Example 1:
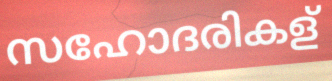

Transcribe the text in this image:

സഹോദരികള്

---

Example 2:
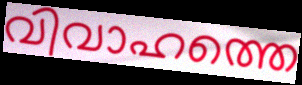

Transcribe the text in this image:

വിവാഹത്തെ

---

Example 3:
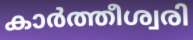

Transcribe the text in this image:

കാർത്തീശ്വരി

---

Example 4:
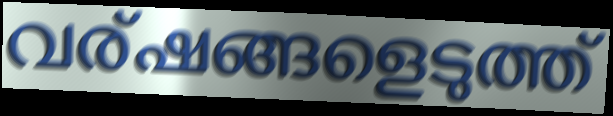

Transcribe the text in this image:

വര്ഷങ്ങളെടുത്ത്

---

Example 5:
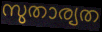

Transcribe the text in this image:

സുതാര്യത